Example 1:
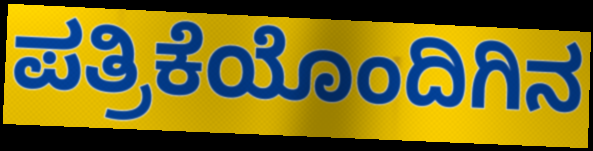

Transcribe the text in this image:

ಪತ್ರಿಕೆಯೊಂದಿಗಿನ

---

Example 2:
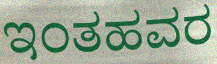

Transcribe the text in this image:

ಇಂತಹವರ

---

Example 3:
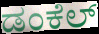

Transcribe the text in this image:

ಡಂಕೆಲ್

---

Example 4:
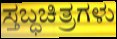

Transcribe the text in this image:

ಸ್ತಬ್ಧಚಿತ್ರಗಳು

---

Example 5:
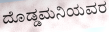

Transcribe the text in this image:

ದೊಡ್ಡಮನಿಯವರ